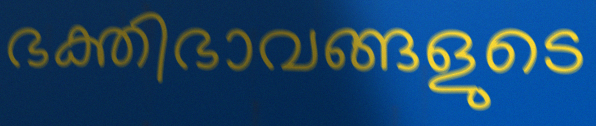
ഭക്തിഭാവങ്ങളുടെ